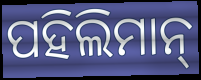
ପହିଲିମାନ୍